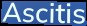
Ascitis